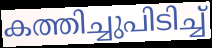
കത്തിച്ചുപിടിച്ച്